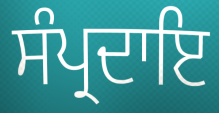
ਸੰਪ੍ਰਦਾਇ